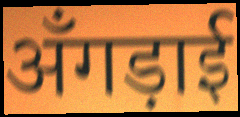
अँगड़ाई